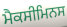
ਮੈਕਸੀਮਿਨਸ